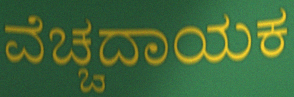
ವೆಚ್ಚದಾಯಕ